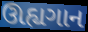
ઊહ્યગાન